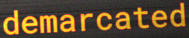
demarcated